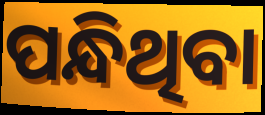
ପନ୍ଧିଥିବା